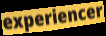
experiencer